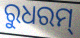
ରୁଧରମ୍